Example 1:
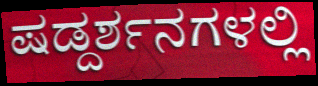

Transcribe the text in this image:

ಷಡ್ದರ್ಶನಗಳಲ್ಲಿ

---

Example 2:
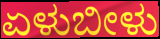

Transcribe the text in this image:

ಏಳುಬೀಳು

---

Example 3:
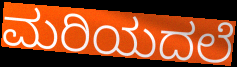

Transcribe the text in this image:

ಮರಿಯದಲೆ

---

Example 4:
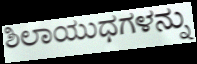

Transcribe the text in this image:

ಶಿಲಾಯುಧಗಳನ್ನು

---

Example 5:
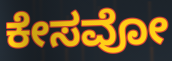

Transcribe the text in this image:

ಕೇಸವೋ